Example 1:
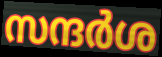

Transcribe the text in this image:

സന്ദർശ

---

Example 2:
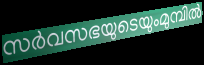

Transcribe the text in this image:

സർവസഭയുടെയുംമുമ്പിൽ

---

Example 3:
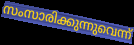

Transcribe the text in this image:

സംസാരിക്കുന്നുവെന്ന്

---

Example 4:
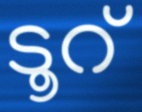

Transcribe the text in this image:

ടൂറ്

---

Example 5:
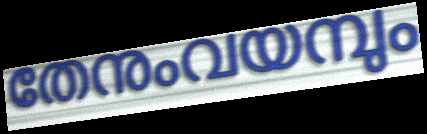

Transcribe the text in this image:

തേനുംവയമ്പും